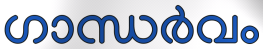
ഗാന്ധർവം